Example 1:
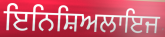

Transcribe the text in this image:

ਇਨਿਸ਼ਿਅਲਾਇਜ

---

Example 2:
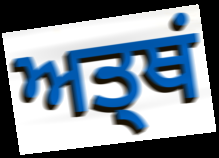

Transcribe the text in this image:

ਅਤ੍ਥਂ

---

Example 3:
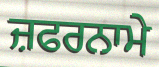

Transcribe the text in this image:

ਜ਼ਫਰਨਾਮੇ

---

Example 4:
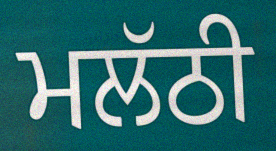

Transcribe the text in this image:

ਮਲੱਠੀ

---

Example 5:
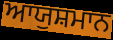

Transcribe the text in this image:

ਆਯੁਸ਼ਮਾਨ